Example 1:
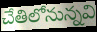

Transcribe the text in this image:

చేతిలోనున్నవి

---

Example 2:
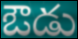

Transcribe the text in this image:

ఔడు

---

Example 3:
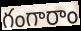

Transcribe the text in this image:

గంగారాం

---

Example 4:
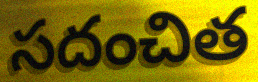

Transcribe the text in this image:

సదంచిత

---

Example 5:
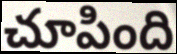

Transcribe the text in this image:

చూపింది